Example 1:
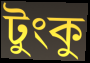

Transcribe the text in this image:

টুংকু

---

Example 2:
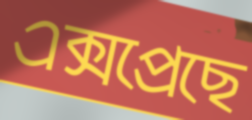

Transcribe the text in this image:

এক্সপ্ৰেছে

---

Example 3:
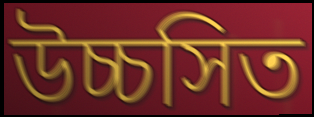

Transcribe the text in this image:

উচ্চসিত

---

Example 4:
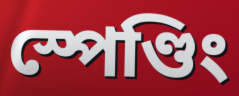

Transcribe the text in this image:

স্পেণ্ডিং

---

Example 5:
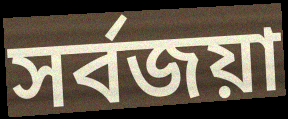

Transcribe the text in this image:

সৰ্বজয়া